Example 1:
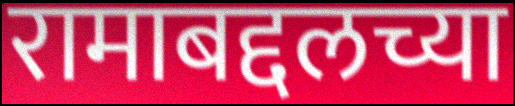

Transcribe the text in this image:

रामाबद्दलच्या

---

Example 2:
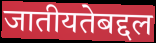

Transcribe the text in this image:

जातीयतेबद्दल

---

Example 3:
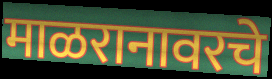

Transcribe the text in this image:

माळरानावरचे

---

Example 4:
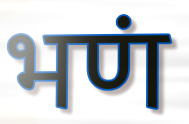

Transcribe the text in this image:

भणं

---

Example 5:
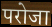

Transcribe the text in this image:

परोजा